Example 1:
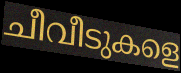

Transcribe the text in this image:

ചീവീടുകളെ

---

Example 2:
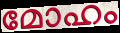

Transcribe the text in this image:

മോഹം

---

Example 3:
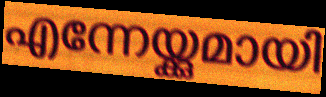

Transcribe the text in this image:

എന്നേയ്ക്കുമായി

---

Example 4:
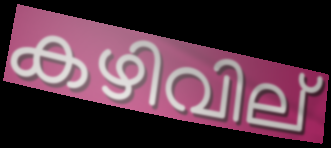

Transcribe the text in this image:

കഴിവില്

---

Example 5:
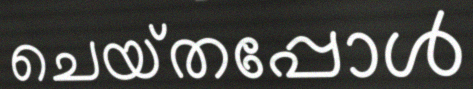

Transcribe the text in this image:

ചെയ്‌തപ്പോൾ